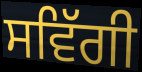
ਸਵਿੱਗੀ